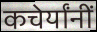
कचेर्यांनीं